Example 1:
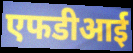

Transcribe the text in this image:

एफडीआई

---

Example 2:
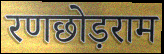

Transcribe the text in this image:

रणछोड़राम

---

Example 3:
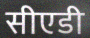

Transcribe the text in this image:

सीएडी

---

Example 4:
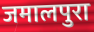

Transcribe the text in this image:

जमालपुरा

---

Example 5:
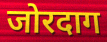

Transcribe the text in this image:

जोरदाग